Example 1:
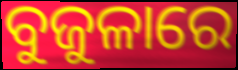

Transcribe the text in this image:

ବୁଜୁଳାରେ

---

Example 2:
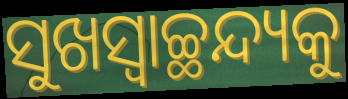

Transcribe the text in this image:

ସୁଖସ୍ଵାଚ୍ଛନ୍ଦ୍ୟକୁ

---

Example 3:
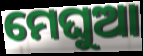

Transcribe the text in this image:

ମେଘୁଆ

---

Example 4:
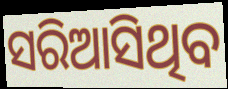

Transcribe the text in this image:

ସରିଆସିଥିବ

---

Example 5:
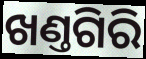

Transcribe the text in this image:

ଖଣ୍ତଗିରି